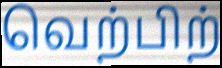
வெற்பிற்